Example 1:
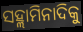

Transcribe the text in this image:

ସହ୍ଲାମିନାଦିକୁ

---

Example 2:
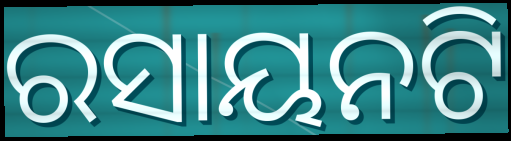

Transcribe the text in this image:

ରସାୟନଟି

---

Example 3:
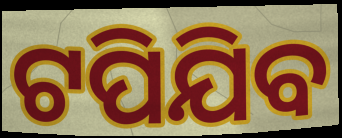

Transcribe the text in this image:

ଟପିଯିବ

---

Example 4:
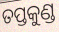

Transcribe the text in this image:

ତପ୍ତକୁଣ୍ଡ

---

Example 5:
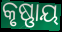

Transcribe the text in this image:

କୃଷ୍ଣାୟ